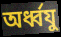
অর্ধ্বযু